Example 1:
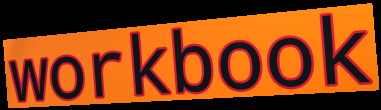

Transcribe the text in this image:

workbook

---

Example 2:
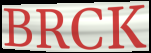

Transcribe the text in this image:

BRCK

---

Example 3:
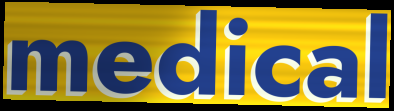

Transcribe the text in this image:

medical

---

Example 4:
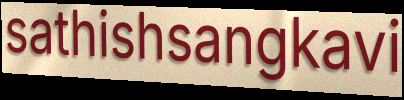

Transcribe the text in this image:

sathishsangkavi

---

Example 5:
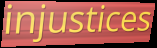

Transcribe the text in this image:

injustices